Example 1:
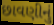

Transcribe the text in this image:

છાવણીનું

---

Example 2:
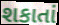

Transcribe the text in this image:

શકાતાં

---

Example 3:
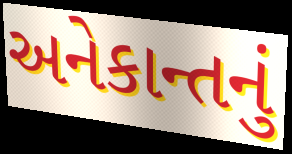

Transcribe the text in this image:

અનેકાન્તનું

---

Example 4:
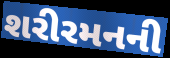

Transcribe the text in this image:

શરીરમનની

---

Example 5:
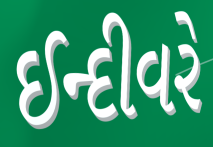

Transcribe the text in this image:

ઈન્દીવરે